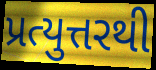
પ્રત્યુત્તરથી